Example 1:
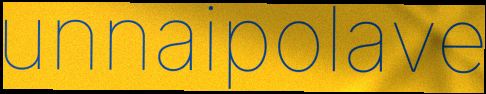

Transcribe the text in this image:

unnaipolave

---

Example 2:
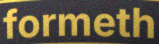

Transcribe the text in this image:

formeth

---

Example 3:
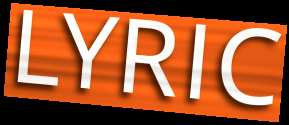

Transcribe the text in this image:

LYRIC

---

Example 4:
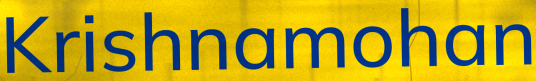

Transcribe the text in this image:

Krishnamohan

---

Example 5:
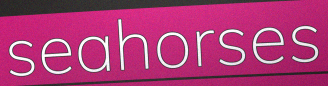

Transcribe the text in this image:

seahorses